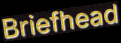
Briefhead